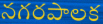
నగరపాలక